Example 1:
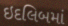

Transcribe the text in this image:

ઇદલિબમાં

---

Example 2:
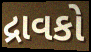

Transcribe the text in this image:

દ્રાવકો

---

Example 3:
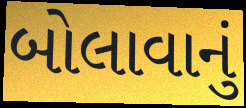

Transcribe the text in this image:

બોલાવાનું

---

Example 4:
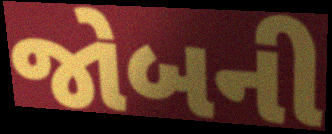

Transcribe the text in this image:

જોબની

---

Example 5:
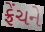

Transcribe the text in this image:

ફ્રેંચને